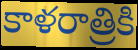
కాళరాత్రికి